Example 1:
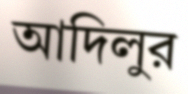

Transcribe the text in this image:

আদিলুর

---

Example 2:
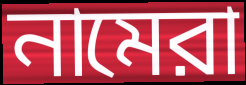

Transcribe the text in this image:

নামেরা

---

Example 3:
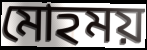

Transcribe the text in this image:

মোহময়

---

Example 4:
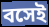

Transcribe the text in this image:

বসেই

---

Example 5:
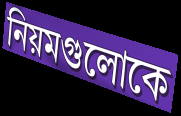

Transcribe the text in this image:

নিয়মগুলোকে